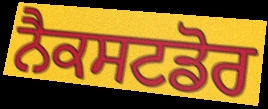
ਨੈਕਸਟਡੋਰ